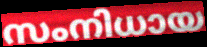
സംനിധായ